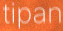
tipan